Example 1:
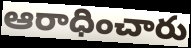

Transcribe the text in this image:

ఆరాధించారు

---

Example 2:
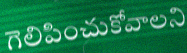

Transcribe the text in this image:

గెలిపించుకోవాలని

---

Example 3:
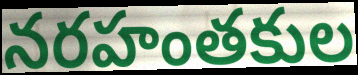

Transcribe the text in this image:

నరహంతకుల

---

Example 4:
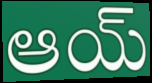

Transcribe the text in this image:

ఆయ్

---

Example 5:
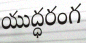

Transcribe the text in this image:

యుద్ధరంగ